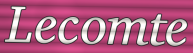
Lecomte